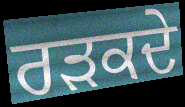
ਰੜਕਦੇ